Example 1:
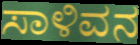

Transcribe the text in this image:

ಸಾಳಿವನ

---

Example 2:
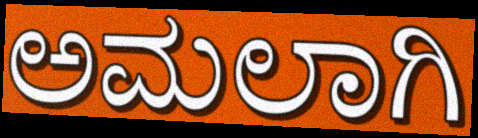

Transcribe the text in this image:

ಅಮಲಾಗಿ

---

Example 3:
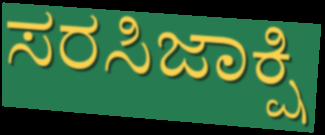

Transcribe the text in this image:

ಸರಸಿಜಾಕ್ಷಿ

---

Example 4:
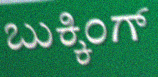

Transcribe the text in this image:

ಬುಕ್ಕಿಂಗ್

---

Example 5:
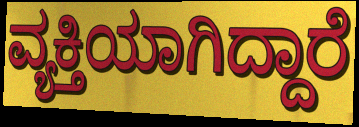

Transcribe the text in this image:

ವ್ಯಕ್ತಿಯಾಗಿದ್ದಾರೆ